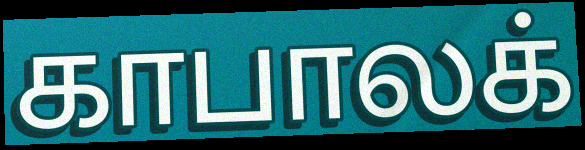
காபாலக்